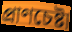
প্রাণচেষ্টা